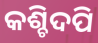
କଶ୍ଚିଦପି